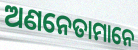
ଅଣନେତାମାନେ